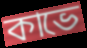
কাভে